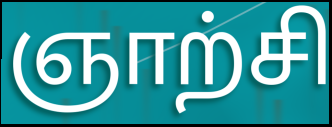
ஞாற்சி